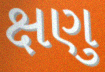
ક્ષણુ